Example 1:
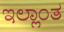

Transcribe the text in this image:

ಇಲ್ಲಾಂತ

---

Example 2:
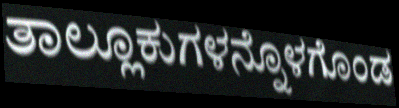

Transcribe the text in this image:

ತಾಲ್ಲೂಕುಗಳನ್ನೊಳಗೊಂಡ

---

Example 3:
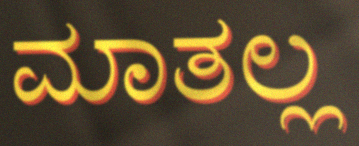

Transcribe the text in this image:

ಮಾತಲ್ಲ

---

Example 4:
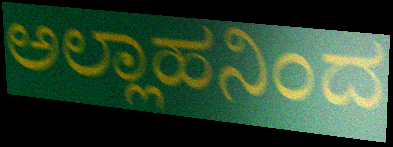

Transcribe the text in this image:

ಅಲ್ಲಾಹನಿಂದ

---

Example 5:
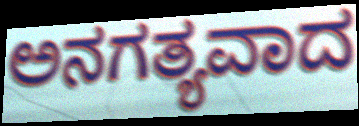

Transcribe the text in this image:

ಅನಗತ್ಯವಾದ